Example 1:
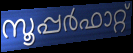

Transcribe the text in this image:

സൂപ്പർഫാറ്റ്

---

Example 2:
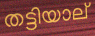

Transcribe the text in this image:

തട്ടിയാല്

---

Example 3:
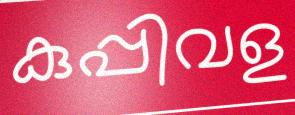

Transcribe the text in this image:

കുപ്പിവള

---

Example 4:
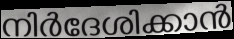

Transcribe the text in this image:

നിർദേശിക്കാൻ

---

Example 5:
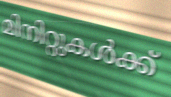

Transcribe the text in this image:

മിനിറ്റുകൾക്ക്